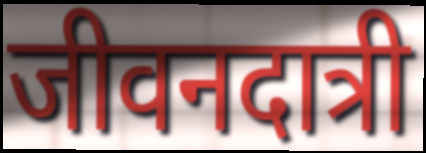
जीवनदात्री